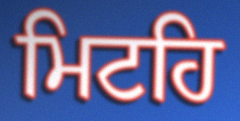
ਮਿਟਹਿ